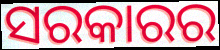
ସରକାରର